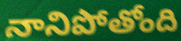
నానిపోతోంది